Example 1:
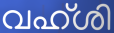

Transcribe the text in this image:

വഹ്ശി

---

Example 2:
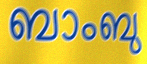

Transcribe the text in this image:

ബാംബു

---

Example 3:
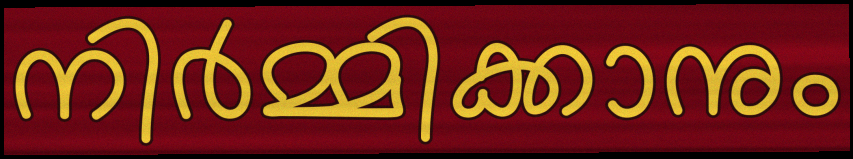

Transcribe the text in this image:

നിർമ്മിക്കാനും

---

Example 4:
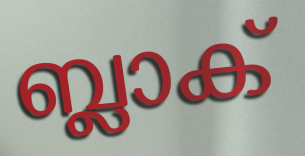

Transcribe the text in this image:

ബ്ലാക്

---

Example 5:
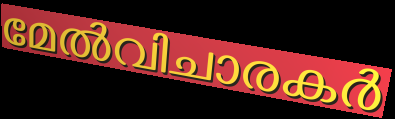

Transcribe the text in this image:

മേൽവിചാരകർ